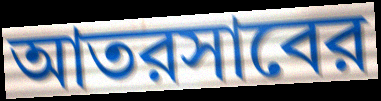
আতরসাবের